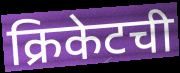
क्रिकेटची